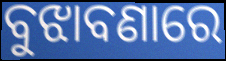
ବୁଝାବଣାରେ